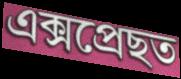
এক্সপ্ৰেছত